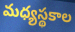
మధ్యస్థకాల